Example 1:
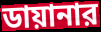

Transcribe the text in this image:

ডায়ানার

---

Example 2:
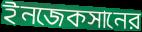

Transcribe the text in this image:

ইনজেকসানের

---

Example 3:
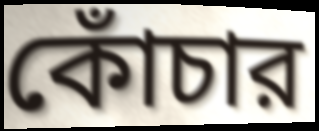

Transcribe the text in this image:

কোঁচার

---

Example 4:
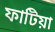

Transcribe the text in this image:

ফাটিয়া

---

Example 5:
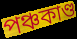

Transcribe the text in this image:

পঞ্চকাণ্ড